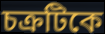
চক্রটিকে